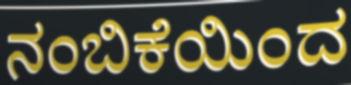
ನಂಬಿಕೆಯಿಂದ